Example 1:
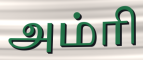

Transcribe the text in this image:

அம்ரி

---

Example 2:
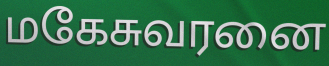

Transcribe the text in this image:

மகேசுவரனை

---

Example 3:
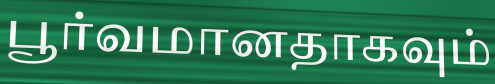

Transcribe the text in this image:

பூர்வமானதாகவும்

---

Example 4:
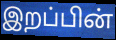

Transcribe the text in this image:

இறப்பின்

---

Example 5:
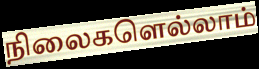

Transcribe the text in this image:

நிலைகளெல்லாம்